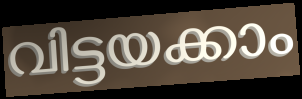
വിട്ടയക്കാം